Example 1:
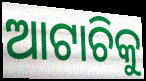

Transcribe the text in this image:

ଆଟାଚିକୁ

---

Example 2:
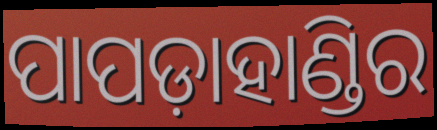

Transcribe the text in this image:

ପାପଡ଼ାହାଣ୍ଡିର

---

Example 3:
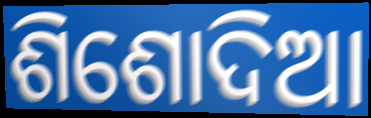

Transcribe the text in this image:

ଶିଶୋଦିଆ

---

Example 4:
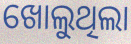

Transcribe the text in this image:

ଖୋଲୁଥିଲା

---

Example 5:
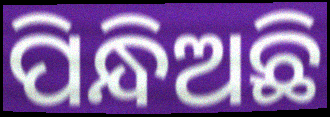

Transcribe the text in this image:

ପିନ୍ଧିଅଛି